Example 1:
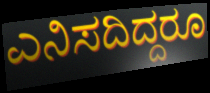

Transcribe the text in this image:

ಎನಿಸದಿದ್ದರೂ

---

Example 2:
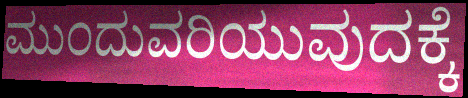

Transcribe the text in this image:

ಮುಂದುವರಿಯುವುದಕ್ಕೆ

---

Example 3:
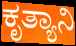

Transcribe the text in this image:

ಕೃತ್ಯಾನಿ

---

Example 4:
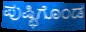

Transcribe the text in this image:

ಪುಷ್ಟಿಗೊಂಡ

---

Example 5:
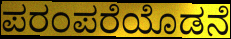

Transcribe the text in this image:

ಪರಂಪರೆಯೊಡನೆ